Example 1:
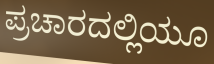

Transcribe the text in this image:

ಪ್ರಚಾರದಲ್ಲಿಯೂ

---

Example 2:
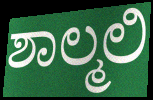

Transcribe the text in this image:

ಶಾಲ್ಮಲಿ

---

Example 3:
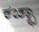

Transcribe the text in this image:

ಕಚ್ಛಾ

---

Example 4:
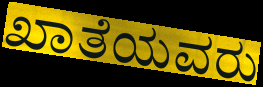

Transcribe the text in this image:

ಖಾತೆಯವರು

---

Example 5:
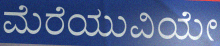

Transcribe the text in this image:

ಮೆರೆಯುವಿಯೇ